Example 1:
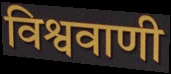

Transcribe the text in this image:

विश्ववाणी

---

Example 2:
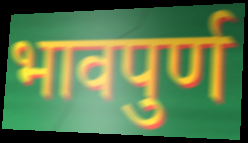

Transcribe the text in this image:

भावपुर्ण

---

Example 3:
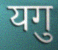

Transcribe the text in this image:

यगु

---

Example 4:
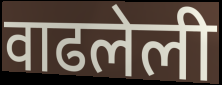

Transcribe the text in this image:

वाढलेली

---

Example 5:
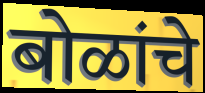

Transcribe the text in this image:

बोळांचे